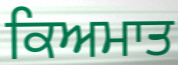
ਕਿਅਮਾਤ